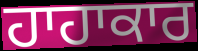
ਹਾਹਾਕਾਰ